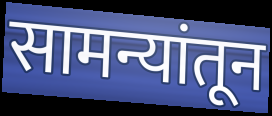
सामन्यांतून